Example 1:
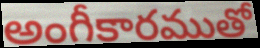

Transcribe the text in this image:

అంగీకారముతో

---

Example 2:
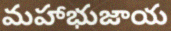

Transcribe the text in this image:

మహాభుజాయ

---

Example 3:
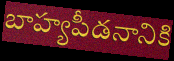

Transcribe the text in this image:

బాహ్యపీడనానికి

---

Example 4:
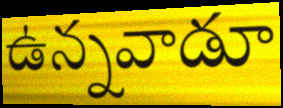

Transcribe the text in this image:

ఉన్నవాడూ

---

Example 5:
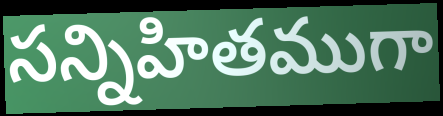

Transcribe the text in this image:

సన్నిహితముగా